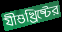
যীশুখ্রিষ্টের